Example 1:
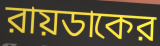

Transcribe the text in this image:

রায়ডাকের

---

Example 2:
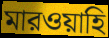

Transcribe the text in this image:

মারওয়াহি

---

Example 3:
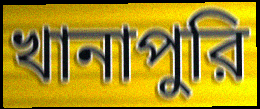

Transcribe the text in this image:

খানাপুরি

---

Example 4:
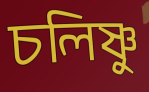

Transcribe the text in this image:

চলিষ্ণু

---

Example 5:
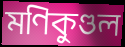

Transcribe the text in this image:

মণিকুণ্ডল